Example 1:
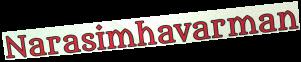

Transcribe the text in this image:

Narasimhavarman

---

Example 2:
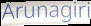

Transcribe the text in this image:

Arunagiri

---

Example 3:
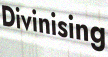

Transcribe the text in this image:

Divinising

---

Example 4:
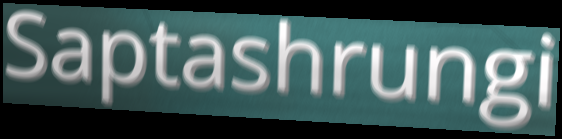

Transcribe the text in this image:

Saptashrungi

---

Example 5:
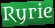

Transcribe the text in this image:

Ryrie